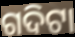
ଗଦିଟା